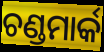
ଚଣ୍ଡମାର୍କ